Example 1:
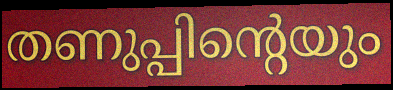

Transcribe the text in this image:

തണുപ്പിന്റെയും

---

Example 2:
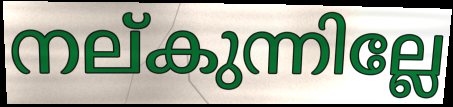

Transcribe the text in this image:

നല്കുന്നില്ലേ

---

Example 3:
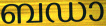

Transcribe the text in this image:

ബഡാ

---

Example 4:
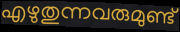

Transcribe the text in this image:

എഴുതുന്നവരുമുണ്ട്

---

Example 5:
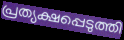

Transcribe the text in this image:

പ്രത്യക്ഷപ്പെടുത്തി